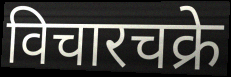
विचारचक्रे